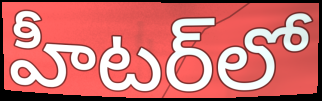
హీటర్‌లో